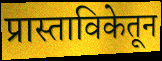
प्रास्ताविकेतून